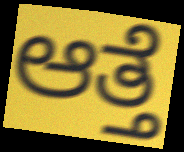
ಆತ್ತೆ